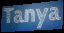
Tanya